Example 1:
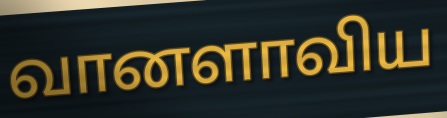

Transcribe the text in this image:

வானளாவிய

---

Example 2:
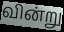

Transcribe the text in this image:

வின்று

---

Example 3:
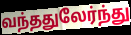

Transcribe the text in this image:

வந்ததுலேர்ந்து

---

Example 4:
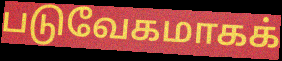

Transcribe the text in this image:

படுவேகமாகக்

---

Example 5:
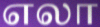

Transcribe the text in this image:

எலா